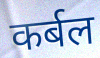
कर्बल